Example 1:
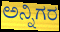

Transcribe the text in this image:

ಅನ್ನಿಗರ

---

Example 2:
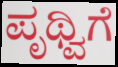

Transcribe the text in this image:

ಪೃಥ್ವಿಗೆ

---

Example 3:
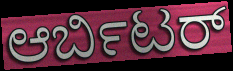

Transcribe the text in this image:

ಆರ್ಬಿಟರ್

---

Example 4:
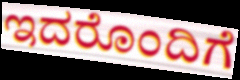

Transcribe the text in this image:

ಇದರೊಂದಿಗೆ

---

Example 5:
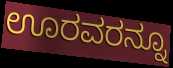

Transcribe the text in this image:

ಊರವರನ್ನೂ